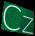
Cz